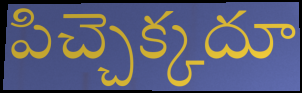
పిచ్చెక్కదూ